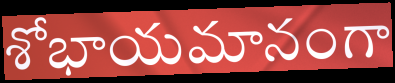
శోభాయమానంగా